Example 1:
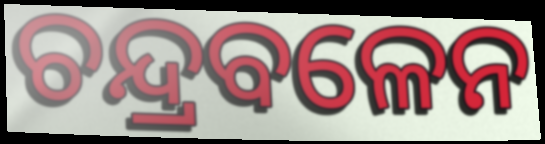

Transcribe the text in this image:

ଚନ୍ଦ୍ରବଳେନ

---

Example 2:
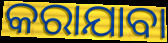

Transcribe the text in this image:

କରାଯାବା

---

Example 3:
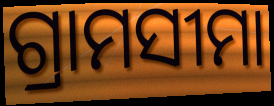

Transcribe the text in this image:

ଗ୍ରାମସୀମା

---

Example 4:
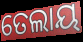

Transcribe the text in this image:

ତେଲାୟ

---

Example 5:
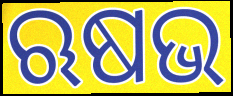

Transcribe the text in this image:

ଋଷଭ